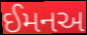
ઈમનઅ